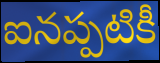
ఐనప్పటికీ